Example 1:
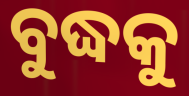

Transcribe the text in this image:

ବୁଦ୍ଧକୁ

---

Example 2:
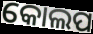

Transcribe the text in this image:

କୋଲପ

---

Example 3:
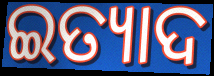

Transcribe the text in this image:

ଇତ୍ୟାଦ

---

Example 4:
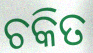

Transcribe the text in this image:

ଚକିତ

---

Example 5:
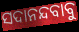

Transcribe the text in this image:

ସଦାନନ୍ଦବାବୁ